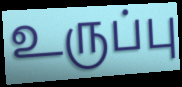
உருப்பு